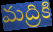
మద్రికి